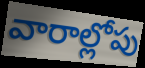
వారాల్లోపు